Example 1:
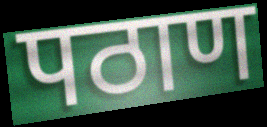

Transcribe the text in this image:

पठाण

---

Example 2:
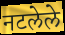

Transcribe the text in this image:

नटलेले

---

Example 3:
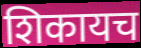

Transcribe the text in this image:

शिकायच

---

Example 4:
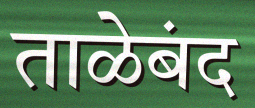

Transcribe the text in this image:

ताळेबंद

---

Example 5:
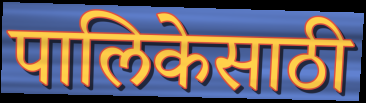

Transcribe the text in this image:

पालिकेसाठी